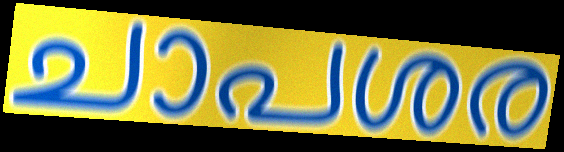
ചാപശര